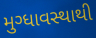
મુગ્ધાવસ્થાથી